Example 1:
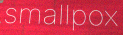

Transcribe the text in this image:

smallpox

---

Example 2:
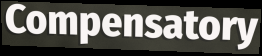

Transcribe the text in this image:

Compensatory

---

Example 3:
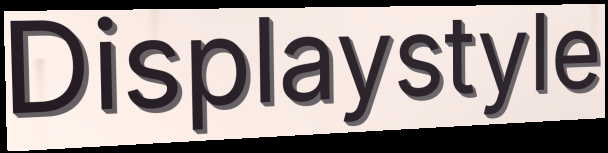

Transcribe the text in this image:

Displaystyle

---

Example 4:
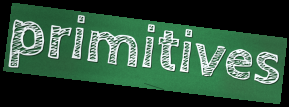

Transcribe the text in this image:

primitives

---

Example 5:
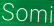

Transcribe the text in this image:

Somi